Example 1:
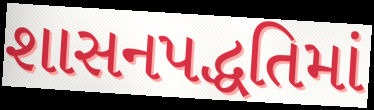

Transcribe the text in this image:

શાસનપદ્ધતિમાં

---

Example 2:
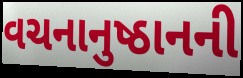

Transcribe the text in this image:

વચનાનુષ્ઠાનની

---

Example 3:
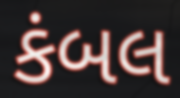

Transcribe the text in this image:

કંબલ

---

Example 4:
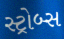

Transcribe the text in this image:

સ્ટ્રોબ્સ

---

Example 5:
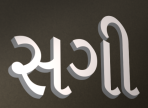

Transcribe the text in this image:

સગી